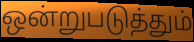
ஒன்றுபடுத்தும்